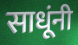
साधूंनी